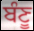
ਬੰਣੂ